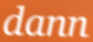
dann